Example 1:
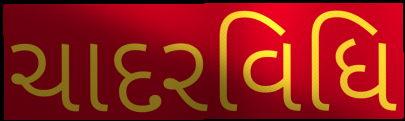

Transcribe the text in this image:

ચાદરવિધિ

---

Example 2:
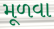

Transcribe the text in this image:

મૂળવા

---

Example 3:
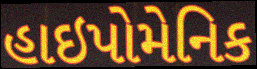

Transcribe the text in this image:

હાઇપોમેનિક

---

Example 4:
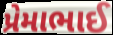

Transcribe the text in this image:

પ્રેમાભાઈ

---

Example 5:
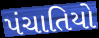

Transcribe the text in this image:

પંચાતિયો